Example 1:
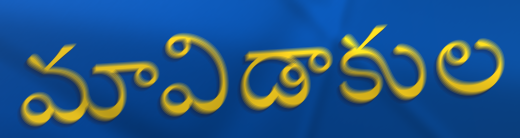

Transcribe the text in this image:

మావిడాకుల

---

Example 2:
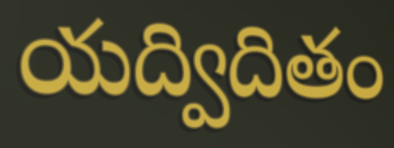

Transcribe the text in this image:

యద్విదితం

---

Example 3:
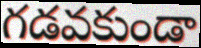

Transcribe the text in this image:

గడవకుండా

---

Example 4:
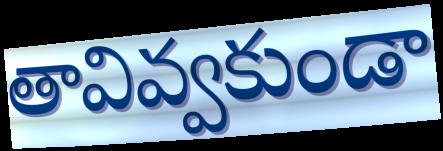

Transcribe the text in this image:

తావివ్వకుండా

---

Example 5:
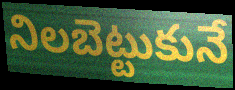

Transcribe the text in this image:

నిలబెట్టుకునే